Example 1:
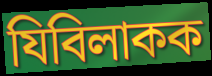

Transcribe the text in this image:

যিবিলাকক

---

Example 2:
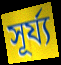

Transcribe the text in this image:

সূৰ্য্য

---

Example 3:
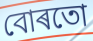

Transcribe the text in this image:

বোৰতো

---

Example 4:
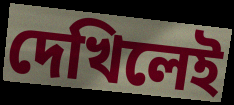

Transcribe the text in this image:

দেখিলেই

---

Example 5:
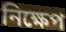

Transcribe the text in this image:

নিক্ষেপ